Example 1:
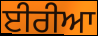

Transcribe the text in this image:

ਈਰੀਆ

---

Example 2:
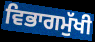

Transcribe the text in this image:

ਵਿਭਾਗਮੁੱਖੀ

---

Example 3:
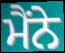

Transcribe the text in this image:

ਮੈਂਨੇ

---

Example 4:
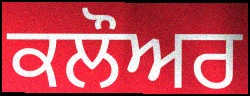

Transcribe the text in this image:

ਕਲੌਅਰ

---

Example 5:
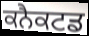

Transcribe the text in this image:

ਕਨੈਕਟਡ